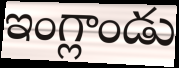
ఇంగ్లాండు